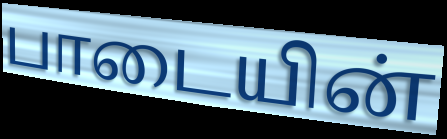
பாடையின்